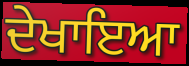
ਦੇਖਾਇਆ